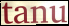
tanu